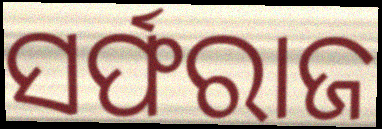
ସର୍ଫରାଜ